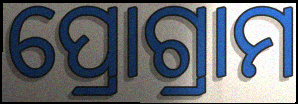
ପ୍ରୋଗ୍ରାମ